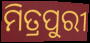
ମିତ୍ରପୁରୀ